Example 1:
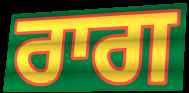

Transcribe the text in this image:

ਰਾਗ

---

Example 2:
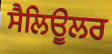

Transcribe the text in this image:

ਸੈਲਿਊਲਰ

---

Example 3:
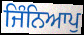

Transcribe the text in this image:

ਜਿੰਨਿਆਪੁ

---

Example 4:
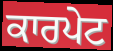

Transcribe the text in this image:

ਕਾਰਪੇਟ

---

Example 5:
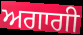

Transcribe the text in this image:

ਅਗਾਗੀ